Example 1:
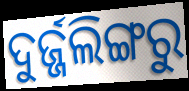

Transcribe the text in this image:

ଦୁର୍ଜ୍ଜଲିଙ୍ଗରୁ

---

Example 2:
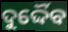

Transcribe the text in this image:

ଦୁର୍ଦ୍ଦୈବ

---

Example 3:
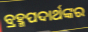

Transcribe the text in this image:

ବ୍ରହ୍ମପଦାର୍ଥଙ୍କର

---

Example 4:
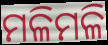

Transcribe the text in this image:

ମଳିମଳି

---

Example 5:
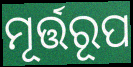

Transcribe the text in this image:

ମୂର୍ତ୍ତରୂପ